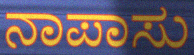
ನಾಪಾಸು